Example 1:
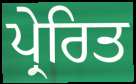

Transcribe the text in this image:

ਪ੍ਰੇਰਿਤ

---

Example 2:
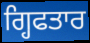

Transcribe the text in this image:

ਗ੍ਹਿਫਤਾਰ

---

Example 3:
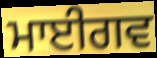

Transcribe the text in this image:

ਮਾਈਗਵ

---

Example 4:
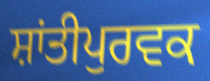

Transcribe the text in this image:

ਸ਼ਾਂਤੀਪੁਰਵਕ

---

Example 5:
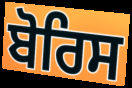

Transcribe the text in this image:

ਬੋਰਿਸ